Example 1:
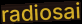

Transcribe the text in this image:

radiosai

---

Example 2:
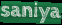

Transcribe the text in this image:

saniya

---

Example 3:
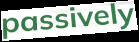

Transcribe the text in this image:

passively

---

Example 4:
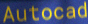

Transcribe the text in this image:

Autocad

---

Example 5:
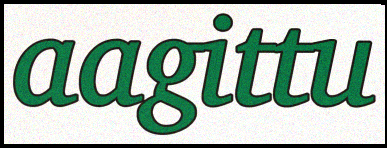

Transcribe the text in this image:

aagittu